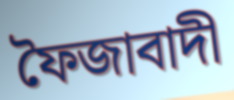
ফৈজাবাদী